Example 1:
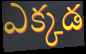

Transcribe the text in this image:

ఎక్కడ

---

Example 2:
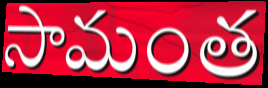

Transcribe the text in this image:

సామంత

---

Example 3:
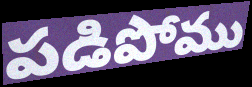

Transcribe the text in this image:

పడిపోము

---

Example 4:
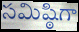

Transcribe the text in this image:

సమిష్ఠిగా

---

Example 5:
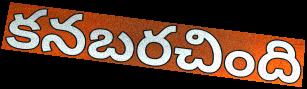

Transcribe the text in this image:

కనబరచింది